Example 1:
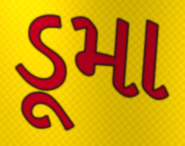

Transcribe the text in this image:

ડૂમા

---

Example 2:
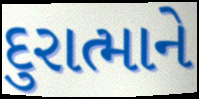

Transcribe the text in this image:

દુરાત્માને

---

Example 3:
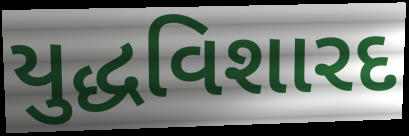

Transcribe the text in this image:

યુદ્ધવિશારદ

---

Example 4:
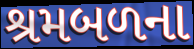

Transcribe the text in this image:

શ્રમબળના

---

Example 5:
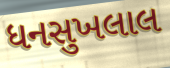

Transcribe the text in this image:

ધનસુખલાલ